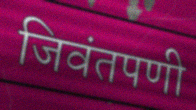
जिवंतपणी